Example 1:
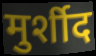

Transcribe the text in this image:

मुर्शीद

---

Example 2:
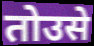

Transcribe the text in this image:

तोउसे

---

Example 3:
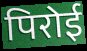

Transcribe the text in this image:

पिरोई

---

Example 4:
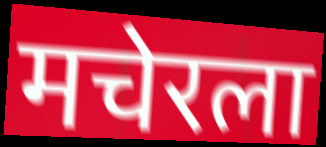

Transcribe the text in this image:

मचेरला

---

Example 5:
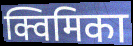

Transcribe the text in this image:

क्विमिका